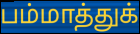
பம்மாத்துக்